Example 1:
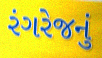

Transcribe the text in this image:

રંગરેજનું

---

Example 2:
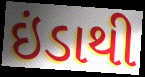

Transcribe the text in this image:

ઇંડાથી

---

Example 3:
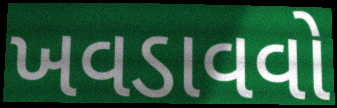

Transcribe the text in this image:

ખવડાવવો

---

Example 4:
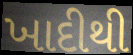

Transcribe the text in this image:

ખાદીથી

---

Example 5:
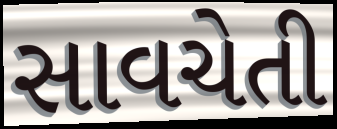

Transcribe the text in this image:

સાવચેતી